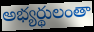
అభ్యర్థులంతా